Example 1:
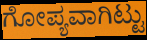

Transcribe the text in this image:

ಗೋಪ್ಯವಾಗಿಟ್ಟು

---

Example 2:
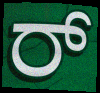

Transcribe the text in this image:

ರ್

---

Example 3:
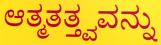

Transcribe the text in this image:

ಆತ್ಮತತ್ತ್ವವನ್ನು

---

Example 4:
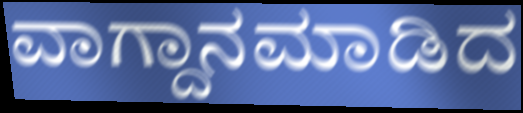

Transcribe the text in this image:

ವಾಗ್ದಾನಮಾಡಿದ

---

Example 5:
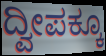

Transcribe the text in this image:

ದ್ವೀಪಕ್ಕೂ